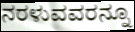
ನರಳುವವರನ್ನೂ